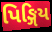
પિઙ્ગિય